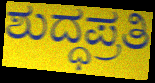
ಶುದ್ಧಪ್ರತಿ